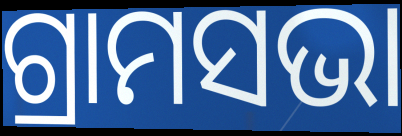
ଗ୍ରାମସଭା